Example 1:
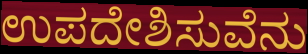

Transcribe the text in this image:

ಉಪದೇಶಿಸುವೆನು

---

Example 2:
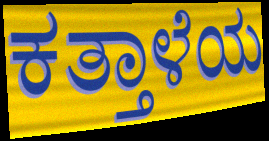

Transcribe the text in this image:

ಕತ್ತಾಳೆಯ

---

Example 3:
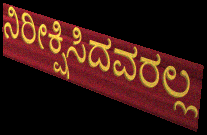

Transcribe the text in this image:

ನಿರೀಕ್ಷಿಸಿದವರಲ್ಲ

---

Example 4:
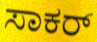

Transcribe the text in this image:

ಸಾಕರ್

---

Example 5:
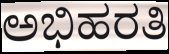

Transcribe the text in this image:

ಅಭಿಹರತಿ